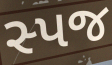
સ્પજ